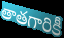
తాతగారికీ